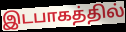
இடபாகத்தில்